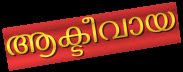
ആക്ടീവായ